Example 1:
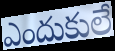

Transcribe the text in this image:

ఎందుకులే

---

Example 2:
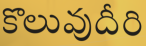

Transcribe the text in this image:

కొలువుదీరి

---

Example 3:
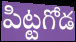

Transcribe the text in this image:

పిట్టగోడ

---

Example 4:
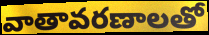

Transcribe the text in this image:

వాతావరణాలతో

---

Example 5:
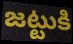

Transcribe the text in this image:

జట్టుకి